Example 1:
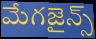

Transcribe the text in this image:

మేగజైన్స్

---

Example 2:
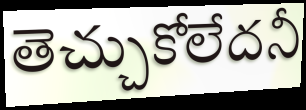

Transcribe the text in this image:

తెచ్చుకోలేదనీ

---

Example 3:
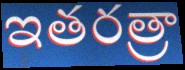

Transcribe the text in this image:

ఇతరత్రా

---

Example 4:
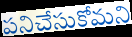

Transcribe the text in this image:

పనిచేసుకోమని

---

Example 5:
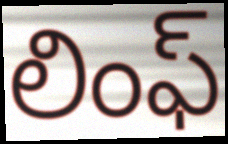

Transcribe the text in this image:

లింఫ్